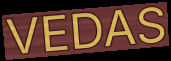
VEDAS